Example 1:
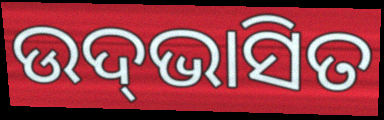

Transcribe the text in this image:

ଉଦ୍‌ଭାସିତ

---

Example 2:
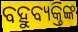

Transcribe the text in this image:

ବହୁବ୍ୟକ୍ତିଙ୍କ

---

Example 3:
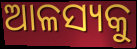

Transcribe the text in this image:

ଆଳସ୍ୟକୁ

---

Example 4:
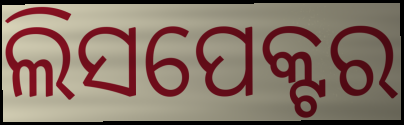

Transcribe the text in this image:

ଲିସପେକ୍ଟର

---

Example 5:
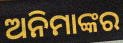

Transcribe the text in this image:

ଅନିମାଙ୍କର